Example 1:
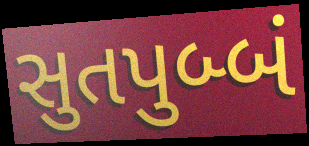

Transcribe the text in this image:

સુતપુબ્બં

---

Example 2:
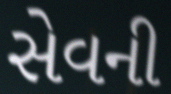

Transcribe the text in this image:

સેવની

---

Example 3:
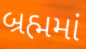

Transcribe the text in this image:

બ્રહ્મમાં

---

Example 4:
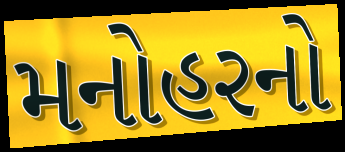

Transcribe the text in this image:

મનોહરનો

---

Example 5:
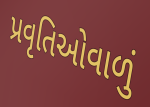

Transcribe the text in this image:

પ્રવૃતિઓવાળું